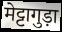
मेट्टागुड़ा